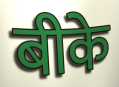
बीके